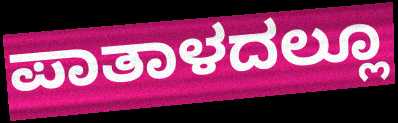
ಪಾತಾಳದಲ್ಲೂ